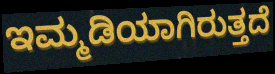
ಇಮ್ಮಡಿಯಾಗಿರುತ್ತದೆ